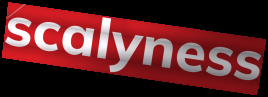
scalyness